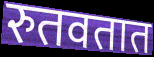
रुतवतात